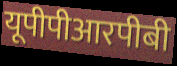
यूपीपीआरपीबी